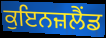
ਕੁਇਨਜ਼ਲੈਂਡ